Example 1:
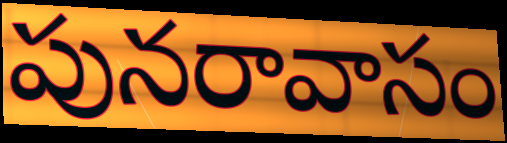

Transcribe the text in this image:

పునరావాసం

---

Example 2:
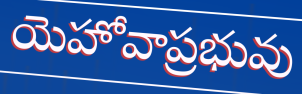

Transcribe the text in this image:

యెహోవాప్రభువు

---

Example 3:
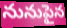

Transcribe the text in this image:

నునుపైన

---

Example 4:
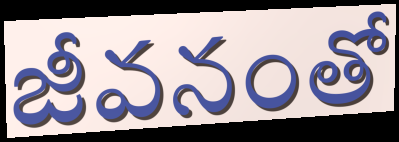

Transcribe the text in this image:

జీవనంతో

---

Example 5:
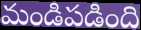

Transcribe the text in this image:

మండిపడింది